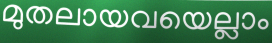
മുതലായവയെല്ലാം